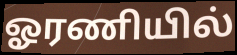
ஓரணியில்